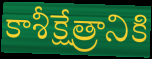
కాశీక్షేత్రానికి